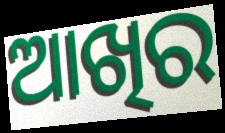
ଆଖିର